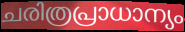
ചരിത്രപ്രാധാന്യം